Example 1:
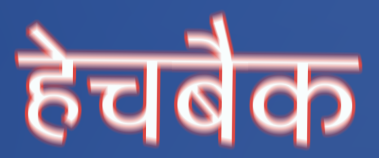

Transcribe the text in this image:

हेचबैक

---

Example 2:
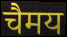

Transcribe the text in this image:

चैमय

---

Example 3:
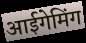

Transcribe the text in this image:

आईगेमिंग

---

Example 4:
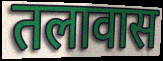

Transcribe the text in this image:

तलावास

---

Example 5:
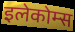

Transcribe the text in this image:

इलेकोम्स